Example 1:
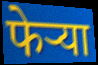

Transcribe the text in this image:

फेऱ्या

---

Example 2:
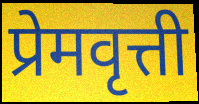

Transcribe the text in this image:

प्रेमवृत्ती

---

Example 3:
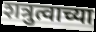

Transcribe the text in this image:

शत्रुत्वाच्या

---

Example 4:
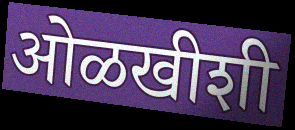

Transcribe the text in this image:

ओळखीशी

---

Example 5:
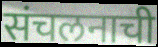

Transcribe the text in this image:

संचलनाची